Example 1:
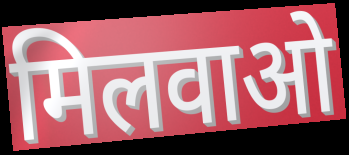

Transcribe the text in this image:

मिलवाओ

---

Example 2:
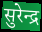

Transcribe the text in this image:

सुरेन्द्र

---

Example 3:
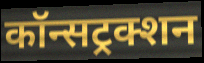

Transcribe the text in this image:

कॉन्सट्रक्शन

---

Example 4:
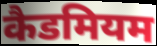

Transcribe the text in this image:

कैडमियम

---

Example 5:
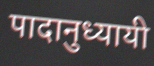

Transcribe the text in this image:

पादानुध्यायी